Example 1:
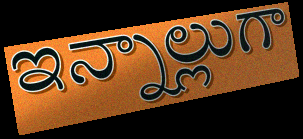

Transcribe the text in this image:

ఇన్నాల్లుగా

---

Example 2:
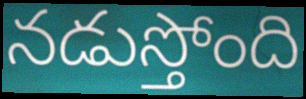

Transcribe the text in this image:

నడుస్తోంది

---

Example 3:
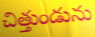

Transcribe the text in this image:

చిత్తుండును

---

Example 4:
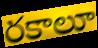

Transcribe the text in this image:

రకాలూ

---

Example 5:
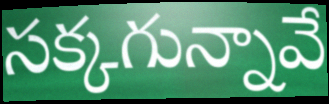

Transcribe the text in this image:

సక్కగున్నావే